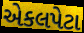
એકલપેટા